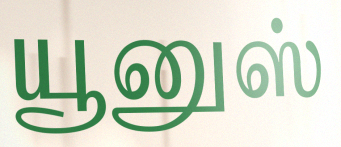
யூனுஸ்